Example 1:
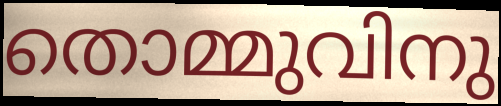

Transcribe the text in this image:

തൊമ്മുവിനു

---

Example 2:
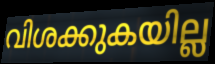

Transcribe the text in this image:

വിശക്കുകയില്ല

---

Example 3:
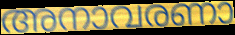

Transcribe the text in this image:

അനാവരണാ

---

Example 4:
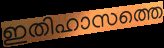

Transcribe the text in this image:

ഇതിഹാസത്തെ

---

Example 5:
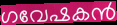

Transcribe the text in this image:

ഗവേഷകൻ